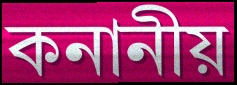
কনানীয়